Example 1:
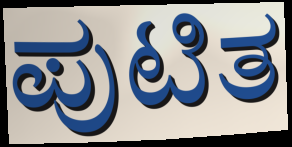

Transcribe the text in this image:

ಪುಟಿತ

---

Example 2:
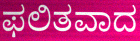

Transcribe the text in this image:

ಫಲಿತವಾದ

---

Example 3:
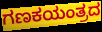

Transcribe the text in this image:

ಗಣಕಯಂತ್ರದ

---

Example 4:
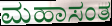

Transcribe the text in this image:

ಮಹಾಸಂತ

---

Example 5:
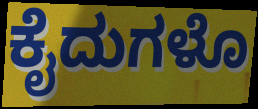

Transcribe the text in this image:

ಕೈದುಗಳೊ